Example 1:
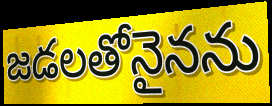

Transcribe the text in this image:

జడలతోనైనను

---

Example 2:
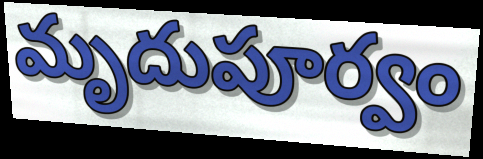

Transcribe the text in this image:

మృదుపూర్వం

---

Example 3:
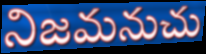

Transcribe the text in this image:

నిజమనుచు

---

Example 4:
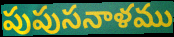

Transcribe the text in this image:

పుపుసనాళము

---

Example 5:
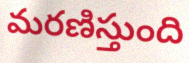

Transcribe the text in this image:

మరణిస్తుంది